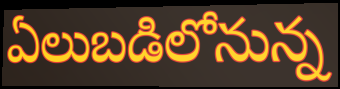
ఏలుబడిలోనున్న